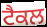
ਟੈਕਲ